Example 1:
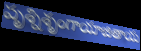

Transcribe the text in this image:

పృశ్నిశృంగాయాజితాయ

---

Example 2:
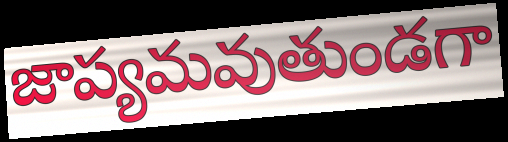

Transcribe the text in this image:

జాప్యమవుతుండగా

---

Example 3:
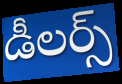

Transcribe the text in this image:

డీలర్స్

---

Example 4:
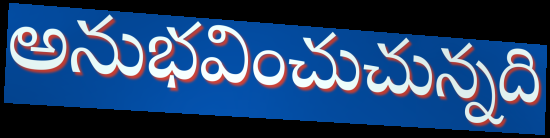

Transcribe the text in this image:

అనుభవించుచున్నది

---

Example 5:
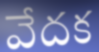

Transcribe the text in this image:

వేదక